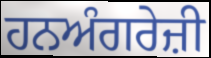
ਹਨਅੰਗਰੇਜ਼ੀ